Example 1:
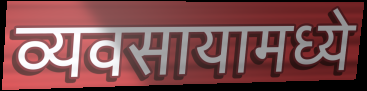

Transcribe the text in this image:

व्यवसायामध्ये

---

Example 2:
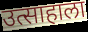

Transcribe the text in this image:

उत्साहाला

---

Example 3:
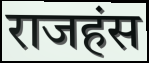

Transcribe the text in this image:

राजहंस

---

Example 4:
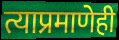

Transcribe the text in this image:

त्याप्रमाणेही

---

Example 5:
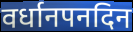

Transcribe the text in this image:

वर्धानपनदिन